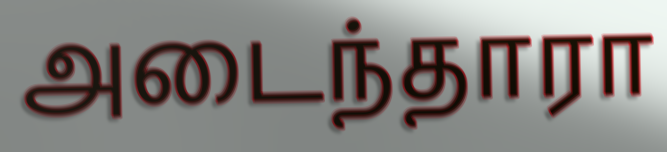
அடைந்தாரா